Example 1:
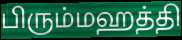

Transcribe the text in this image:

பிரும்மஹத்தி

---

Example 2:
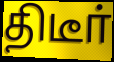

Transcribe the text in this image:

திடீர்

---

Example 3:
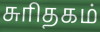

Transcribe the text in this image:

சுரிதகம்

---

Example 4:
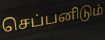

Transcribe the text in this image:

செப்பனிடும்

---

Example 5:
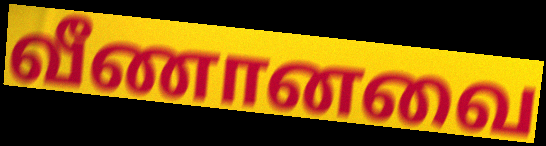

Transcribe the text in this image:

வீணானவை